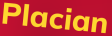
Placian